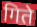
गिते